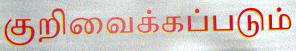
குறிவைக்கப்படும்